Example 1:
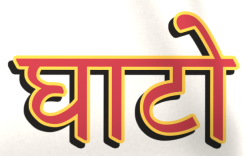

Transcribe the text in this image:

घाटो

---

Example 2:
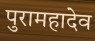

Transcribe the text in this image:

पुरामहादेव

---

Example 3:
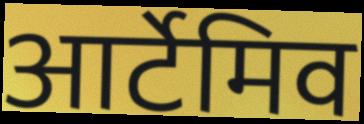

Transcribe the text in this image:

आर्टेमिव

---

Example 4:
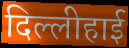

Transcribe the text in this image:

दिल्लीहाई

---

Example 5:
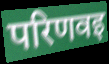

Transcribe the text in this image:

परिणवइ